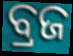
ବ୍ରଜ